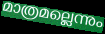
മാത്രമല്ലെന്നും